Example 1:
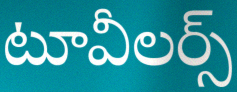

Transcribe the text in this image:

టూవీలర్స్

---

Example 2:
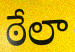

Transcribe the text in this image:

ఠేలా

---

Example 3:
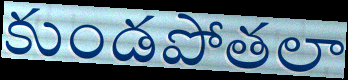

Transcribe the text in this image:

కుండపోతలా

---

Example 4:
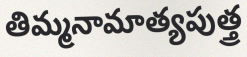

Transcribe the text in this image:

తిమ్మనామాత్యపుత్త్ర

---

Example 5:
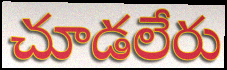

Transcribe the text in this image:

చూడలేరు